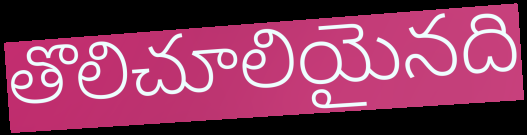
తొలిచూలియైనది